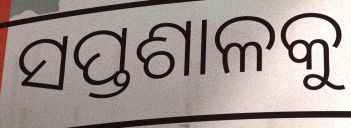
ସପ୍ତଶାଳକୁ